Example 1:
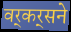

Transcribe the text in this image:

वर्कर्सने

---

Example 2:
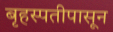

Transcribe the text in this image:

बृहस्पतीपासून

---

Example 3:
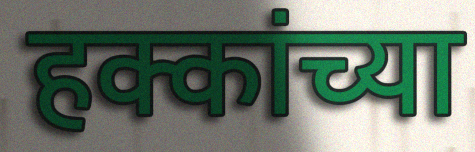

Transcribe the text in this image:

हक्कांच्या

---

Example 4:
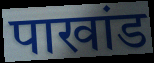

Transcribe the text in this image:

पाखांड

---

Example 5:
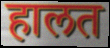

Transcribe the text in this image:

हालत